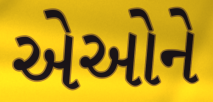
એઓને